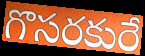
గొసరకురే